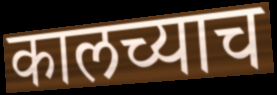
कालच्याच